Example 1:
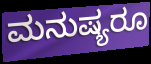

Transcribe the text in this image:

ಮನುಷ್ಯರೂ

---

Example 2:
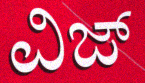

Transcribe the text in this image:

ವಿಜ್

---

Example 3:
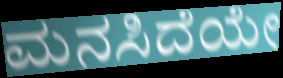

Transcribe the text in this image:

ಮನಸಿದೆಯೇ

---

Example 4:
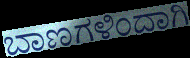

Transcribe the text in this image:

ಬಾಣಗಳಿಂದಾಗಿ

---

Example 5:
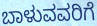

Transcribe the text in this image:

ಬಾಳುವವರಿಗೆ